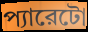
প্যারেটো